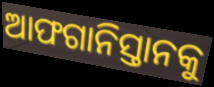
ଆଫଗାନିସ୍ତାନକୁ